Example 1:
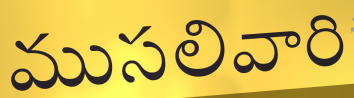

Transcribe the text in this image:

ముసలివారి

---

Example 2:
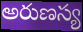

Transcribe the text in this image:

అరుణస్య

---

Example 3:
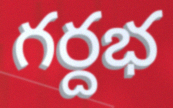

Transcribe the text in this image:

గర్దభ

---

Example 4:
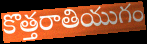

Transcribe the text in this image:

కొత్తరాతియుగం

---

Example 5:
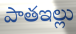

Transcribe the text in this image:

పాతఇల్లు